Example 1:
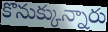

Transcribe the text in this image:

కొనుక్కున్నారు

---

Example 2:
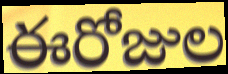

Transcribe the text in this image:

ఈరోజుల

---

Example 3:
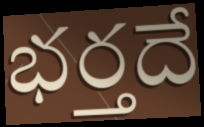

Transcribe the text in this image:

భర్తదే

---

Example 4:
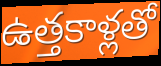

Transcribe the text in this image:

ఉత్తకాళ్లతో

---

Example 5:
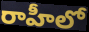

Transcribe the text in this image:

రాహీలో